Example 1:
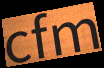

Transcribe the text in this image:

cfm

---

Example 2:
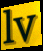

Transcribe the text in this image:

lv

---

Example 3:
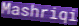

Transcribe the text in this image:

Mashriqi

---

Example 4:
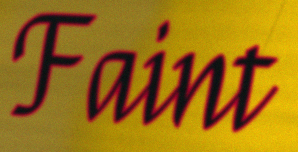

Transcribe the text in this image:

Faint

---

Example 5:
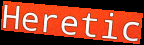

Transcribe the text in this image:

Heretic